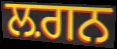
ਲ਼ਗਨ